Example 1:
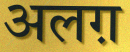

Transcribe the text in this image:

अलग़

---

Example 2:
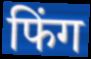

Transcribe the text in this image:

फिंग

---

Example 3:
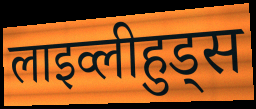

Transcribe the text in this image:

लाइव्लीहुड्स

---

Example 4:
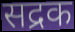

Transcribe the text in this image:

सद्रक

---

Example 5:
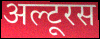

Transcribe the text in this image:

अल्टूरस